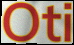
Oti